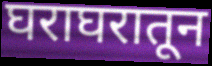
घराघरातून